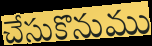
చేసుకొనుము